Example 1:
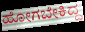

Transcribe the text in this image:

ಹೋಗಬೇಕಿದ್ದ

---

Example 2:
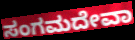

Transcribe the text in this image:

ಸಂಗಮದೇವಾ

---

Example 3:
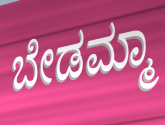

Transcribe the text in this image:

ಬೇಡಮ್ಮಾ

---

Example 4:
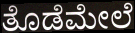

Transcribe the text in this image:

ತೊಡೆಮೇಲೆ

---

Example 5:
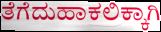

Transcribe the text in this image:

ತೆಗೆದುಹಾಕಲಿಕ್ಕಾಗಿ